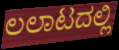
ಲಲಾಟದಲ್ಲಿ